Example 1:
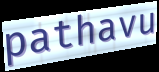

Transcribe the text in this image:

pathavu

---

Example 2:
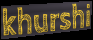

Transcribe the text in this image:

khurshi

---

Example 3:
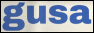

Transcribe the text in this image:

gusa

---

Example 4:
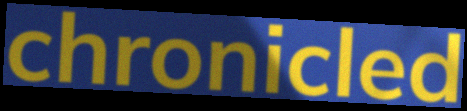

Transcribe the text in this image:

chronicled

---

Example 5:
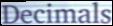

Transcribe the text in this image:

Decimals